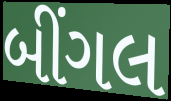
બીંગલ